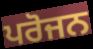
ਪਰੋਜਨ